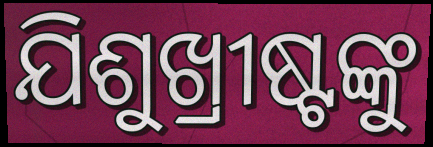
ଯିଶୁଖ୍ରୀଷ୍ଟଙ୍କୁ